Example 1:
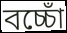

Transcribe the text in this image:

বচ্চোঁ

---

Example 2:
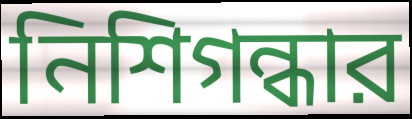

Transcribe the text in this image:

নিশিগন্ধার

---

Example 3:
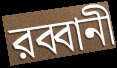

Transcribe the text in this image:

রব্বানী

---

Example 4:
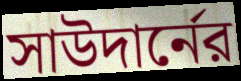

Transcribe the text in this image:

সাউদার্নের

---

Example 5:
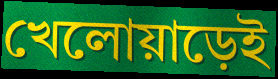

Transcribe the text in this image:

খেলোয়াড়েই